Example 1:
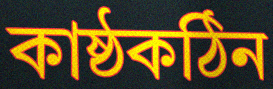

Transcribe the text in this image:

কাষ্ঠকঠিন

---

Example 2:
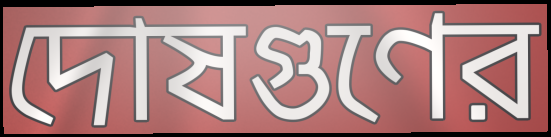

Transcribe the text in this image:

দোষগুণের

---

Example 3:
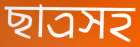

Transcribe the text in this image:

ছাত্রসহ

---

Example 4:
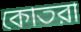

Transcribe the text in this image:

কোতরা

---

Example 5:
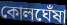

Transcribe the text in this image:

কোলঘেঁষা